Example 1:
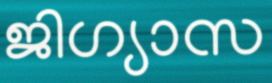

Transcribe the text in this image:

ജിഗ്യാസ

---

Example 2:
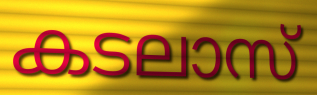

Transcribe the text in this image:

കടലാസ്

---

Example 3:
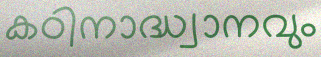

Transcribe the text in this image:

കഠിനാദ്ധ്വാനവും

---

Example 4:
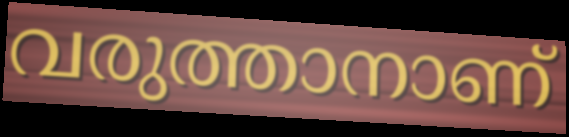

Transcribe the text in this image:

വരുത്താനാണ്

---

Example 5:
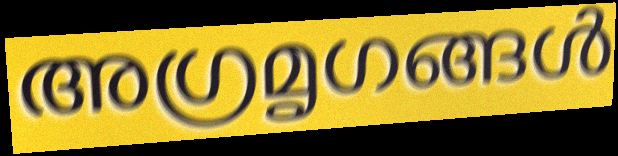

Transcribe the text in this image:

അഗ്രമൃഗങ്ങൾ